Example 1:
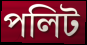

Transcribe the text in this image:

পলিট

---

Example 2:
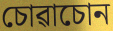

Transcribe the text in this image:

চোৱাচোন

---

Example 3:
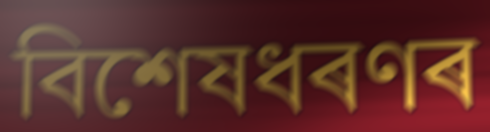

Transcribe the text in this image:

বিশেষধৰণৰ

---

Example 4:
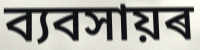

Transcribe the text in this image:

ব্যবসায়ৰ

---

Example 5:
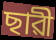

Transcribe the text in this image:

ছাৱী